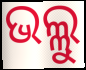
ଭଲ୍ଲୁ